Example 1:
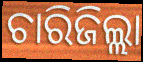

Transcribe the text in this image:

ଚାରିଜିଲ୍ଲା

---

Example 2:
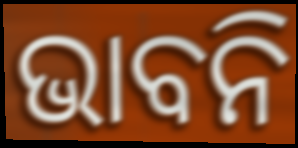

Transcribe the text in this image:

ଭାବନି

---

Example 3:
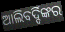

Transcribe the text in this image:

ଆଲିବର୍ଦ୍ଦିଙ୍କର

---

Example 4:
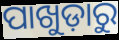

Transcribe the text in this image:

ପାଖୁଡ଼ାରୁ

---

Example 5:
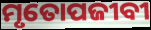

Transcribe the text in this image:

ମୃତୋପଜୀବୀ